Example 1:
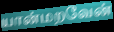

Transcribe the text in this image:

யான்மறவேன்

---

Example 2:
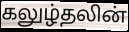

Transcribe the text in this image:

கலுழ்தலின்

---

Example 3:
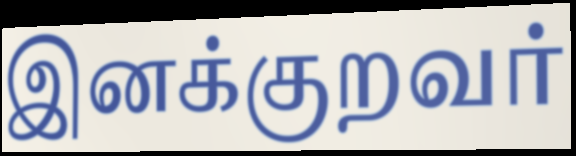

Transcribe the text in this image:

இனக்குறவர்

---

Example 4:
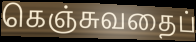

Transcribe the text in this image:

கெஞ்சுவதைப்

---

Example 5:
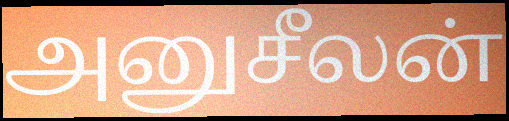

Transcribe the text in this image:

அனுசீலன்